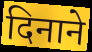
दिनाने